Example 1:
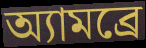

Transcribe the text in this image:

অ্যামব্রে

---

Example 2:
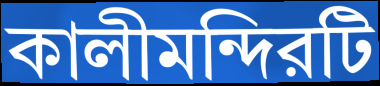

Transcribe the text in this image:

কালীমন্দিরটি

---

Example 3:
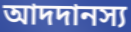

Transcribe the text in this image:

আদদানস্য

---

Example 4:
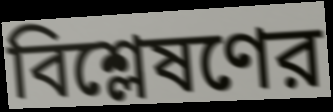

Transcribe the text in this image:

বিশ্লেষণের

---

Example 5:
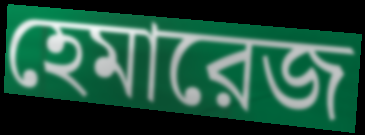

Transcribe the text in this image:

হেমারেজ